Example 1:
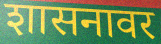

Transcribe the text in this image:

शासनावर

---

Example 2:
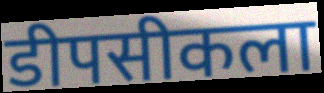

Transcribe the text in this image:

डीपसीकला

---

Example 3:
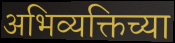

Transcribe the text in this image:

अभिव्यक्तिच्या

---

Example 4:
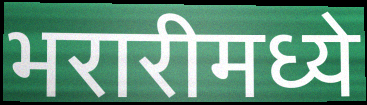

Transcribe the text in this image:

भरारीमध्ये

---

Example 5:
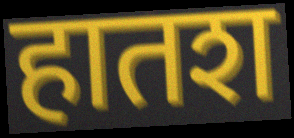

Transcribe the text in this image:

हातश